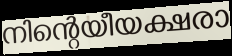
നിന്റെയീയക്ഷരാ